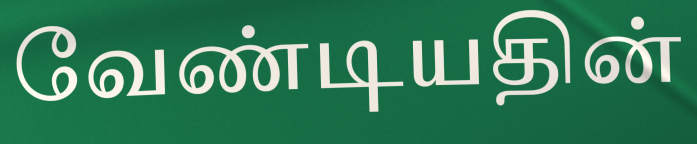
வேண்டியதின்